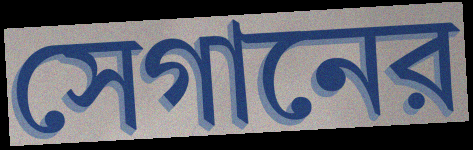
সেগানের